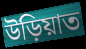
উড়িয়াত